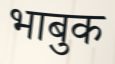
भाबुक